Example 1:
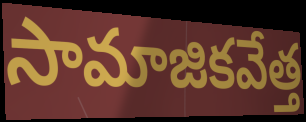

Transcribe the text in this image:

సామాజికవేత్త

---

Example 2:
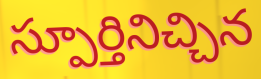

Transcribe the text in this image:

స్పూర్తినిచ్చిన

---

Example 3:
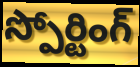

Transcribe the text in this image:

స్పోర్టింగ్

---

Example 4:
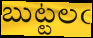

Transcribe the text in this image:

బుట్టలఁ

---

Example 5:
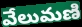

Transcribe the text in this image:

వేలుమణి